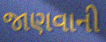
જાણવાની